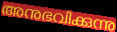
അനുഭവിക്കുന്നു